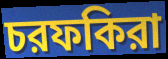
চরফকিরা